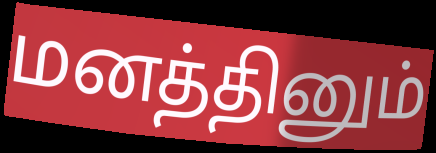
மனத்தினும்